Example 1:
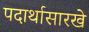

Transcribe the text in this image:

पदार्थासारखे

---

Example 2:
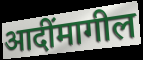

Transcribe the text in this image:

आदींमागील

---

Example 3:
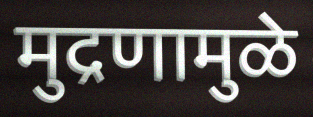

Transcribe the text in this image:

मुद्रणामुळे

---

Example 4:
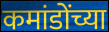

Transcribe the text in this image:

कमांडोंच्या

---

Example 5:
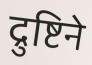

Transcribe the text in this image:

द्रुष्टिने